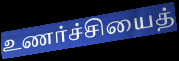
உணர்ச்சியைத்